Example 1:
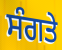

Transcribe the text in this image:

ਸੰਗਤੇ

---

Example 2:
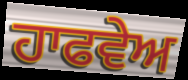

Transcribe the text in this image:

ਹਾਫਵੇਅ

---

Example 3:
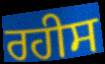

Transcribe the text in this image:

ਰਹੀਸ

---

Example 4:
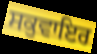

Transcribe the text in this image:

ਸਕੁਵਾਇਰ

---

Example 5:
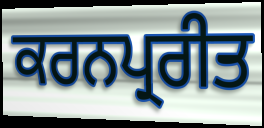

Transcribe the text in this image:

ਕਰਨਪ੍ਰਰੀਤ